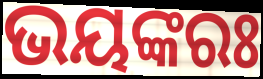
ଭୟଙ୍କରଃ